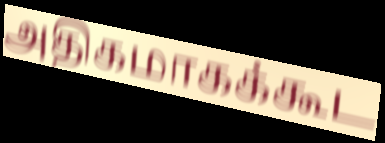
அதிகமாகக்கூட